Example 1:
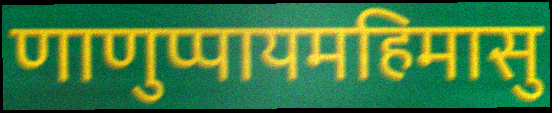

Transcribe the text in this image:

णाणुप्पायमहिमासु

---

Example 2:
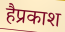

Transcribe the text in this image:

हैप्रकाश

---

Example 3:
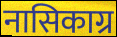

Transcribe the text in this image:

नासिकाग्र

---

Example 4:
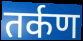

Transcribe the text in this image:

तर्कण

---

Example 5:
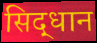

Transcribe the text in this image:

सिद्धान